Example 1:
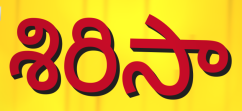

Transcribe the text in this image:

శిరిసా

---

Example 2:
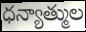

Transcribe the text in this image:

ధన్యాత్ముల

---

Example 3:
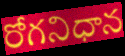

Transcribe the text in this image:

రోగనిధాన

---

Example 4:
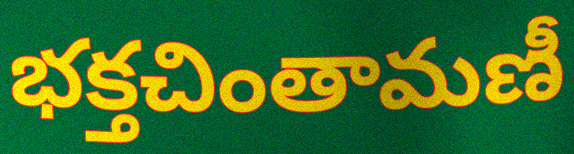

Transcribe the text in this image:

భక్తచింతామణీ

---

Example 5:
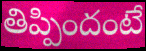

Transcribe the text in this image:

తిప్పిందంటే